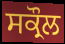
ਸਕ੍ਰੌਲ